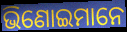
ଭିଣୋଇମାନେ